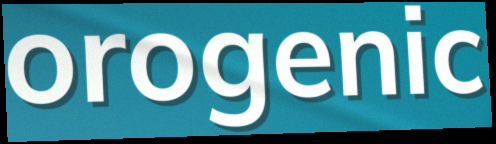
orogenic